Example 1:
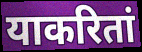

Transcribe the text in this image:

याकरितां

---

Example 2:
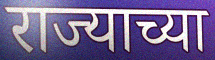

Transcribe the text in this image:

राज्याच्या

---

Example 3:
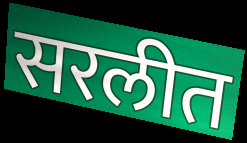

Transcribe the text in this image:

सरलीत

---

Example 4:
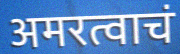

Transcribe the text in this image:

अमरत्वाचं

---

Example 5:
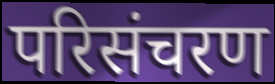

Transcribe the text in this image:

परिसंचरण